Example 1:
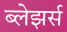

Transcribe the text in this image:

ब्लेझर्स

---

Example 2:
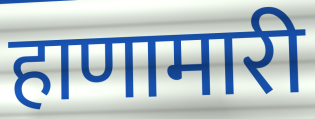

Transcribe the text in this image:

हाणामारी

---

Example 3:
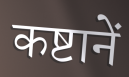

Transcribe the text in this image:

कष्टानें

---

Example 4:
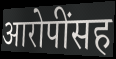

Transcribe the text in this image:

आरोपींसह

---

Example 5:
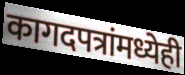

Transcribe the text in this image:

कागदपत्रांमध्येही